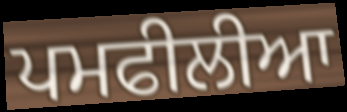
ਪਮਫੀਲੀਆ